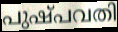
പുഷ്പവതി